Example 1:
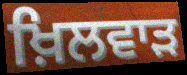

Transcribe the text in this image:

ਖ਼ਿਲਵਾੜ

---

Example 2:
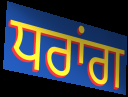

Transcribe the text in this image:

ਧਰਾਂਗ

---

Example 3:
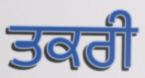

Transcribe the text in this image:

ਤਕਰੀ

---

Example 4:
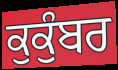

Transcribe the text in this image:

ਕੁਕੁੰਬਰ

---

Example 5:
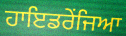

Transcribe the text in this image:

ਹਾਇਡਰੇਂਜਿਆ